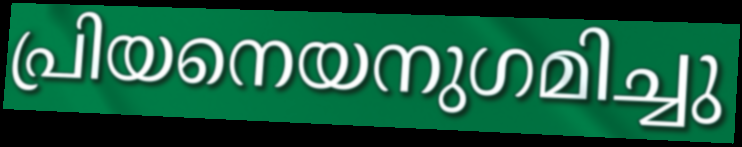
പ്രിയനെയനുഗമിച്ചു